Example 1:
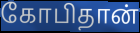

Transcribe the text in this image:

கோபிதான்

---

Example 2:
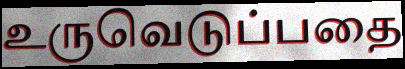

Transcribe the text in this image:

உருவெடுப்பதை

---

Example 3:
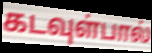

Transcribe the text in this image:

கடவுள்பால்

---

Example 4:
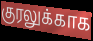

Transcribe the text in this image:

குரலுக்காக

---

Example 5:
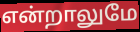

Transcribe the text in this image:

என்றாலுமே